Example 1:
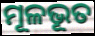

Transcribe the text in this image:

ମୂଳଭୂତ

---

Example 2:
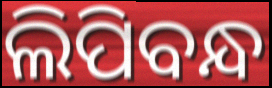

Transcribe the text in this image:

ଲିପିବନ୍ଧ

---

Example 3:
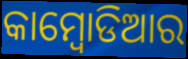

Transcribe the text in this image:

କାମ୍ବୋଡିଆର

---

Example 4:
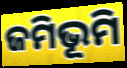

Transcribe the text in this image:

ଜମିଭୂମି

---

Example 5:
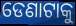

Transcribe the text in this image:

ଡେଣାଟାକୁ